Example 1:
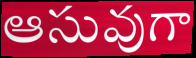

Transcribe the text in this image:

ఆసువుగా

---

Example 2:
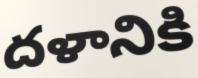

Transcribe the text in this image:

దళానికి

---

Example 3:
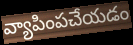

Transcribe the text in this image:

వ్యాపింపచేయడం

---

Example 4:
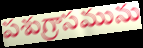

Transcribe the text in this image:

పశుగ్రాసమును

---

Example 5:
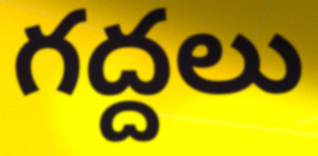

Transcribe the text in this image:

గద్దలు